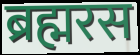
ब्रह्मरस